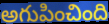
అగుపించింది